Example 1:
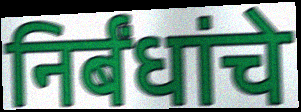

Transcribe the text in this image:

निर्बंधांचे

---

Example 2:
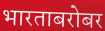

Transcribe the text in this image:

भारताबरोबर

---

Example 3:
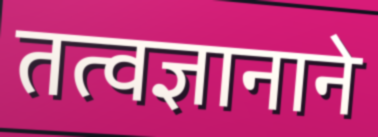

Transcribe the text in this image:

तत्वज्ञानाने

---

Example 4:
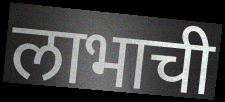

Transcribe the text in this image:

लाभाची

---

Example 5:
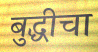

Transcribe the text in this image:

बुद्धीचा